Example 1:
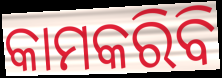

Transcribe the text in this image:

କାମକରିବି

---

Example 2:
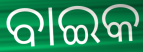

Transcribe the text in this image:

ବାଇକ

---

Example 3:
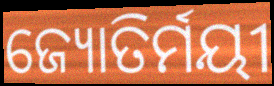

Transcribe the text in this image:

ଜ୍ୟୋତିର୍ମୟୀ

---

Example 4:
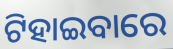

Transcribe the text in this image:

ଟିହାଇବାରେ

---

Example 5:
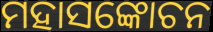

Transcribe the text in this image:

ମହାସଙ୍କୋଚନ